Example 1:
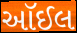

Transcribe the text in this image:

આૅઈલ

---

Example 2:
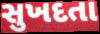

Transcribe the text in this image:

સુખદતા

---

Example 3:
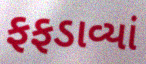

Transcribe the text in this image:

ફફડાવ્યાં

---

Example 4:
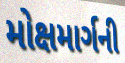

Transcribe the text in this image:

મોક્ષમાર્ગની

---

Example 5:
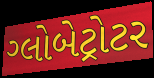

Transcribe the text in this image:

ગ્લોબેટ્રોટર